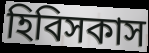
হিবিসকাস